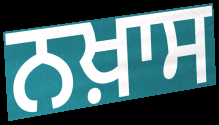
ਨਖ਼ਾਸ